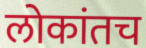
लोकांतच